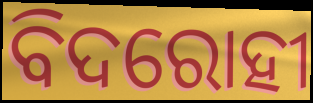
ବିଦରୋହୀ